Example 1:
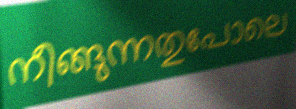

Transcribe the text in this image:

നീങ്ങുന്നതുപോലെ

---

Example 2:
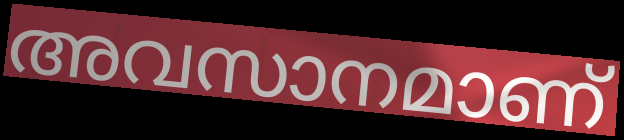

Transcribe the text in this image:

അവസാനമാണ്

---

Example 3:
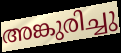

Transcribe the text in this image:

അങ്കുരിച്ചു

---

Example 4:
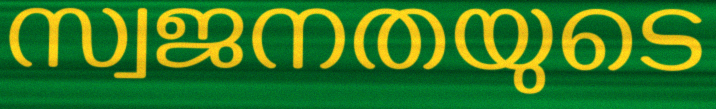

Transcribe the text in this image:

സ്വജനതയുടെ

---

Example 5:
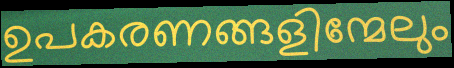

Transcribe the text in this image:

ഉപകരണങ്ങളിന്മേലും